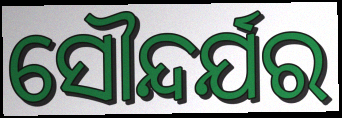
ସୌନ୍ଦର୍ଯର